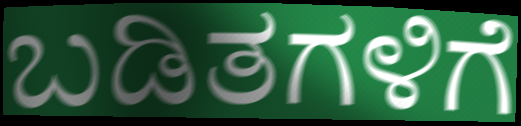
ಬಡಿತಗಳಿಗೆ